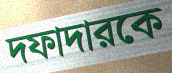
দফাদারকে